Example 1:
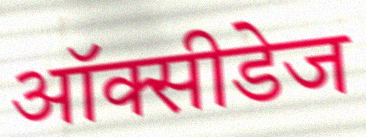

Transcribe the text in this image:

ऑक्सीडेज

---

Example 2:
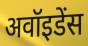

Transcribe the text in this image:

अवॉइडेंस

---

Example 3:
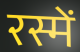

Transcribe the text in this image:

रस्‍में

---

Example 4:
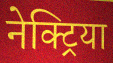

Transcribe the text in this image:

नेक्ट्रिया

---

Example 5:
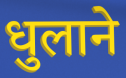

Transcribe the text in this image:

धुलाने